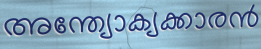
അന്ത്യോക്യക്കാരൻ